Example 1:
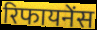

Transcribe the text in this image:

रिफायनेंस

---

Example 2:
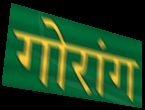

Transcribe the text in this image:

गोरांग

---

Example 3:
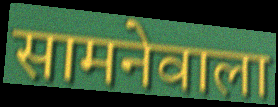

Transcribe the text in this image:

सामनेवाला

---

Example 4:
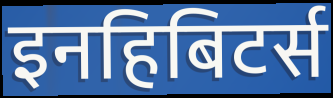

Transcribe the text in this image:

इनहिबिटर्स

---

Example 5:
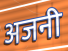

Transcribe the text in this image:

अजनी